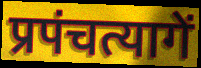
प्रपंचत्यागें